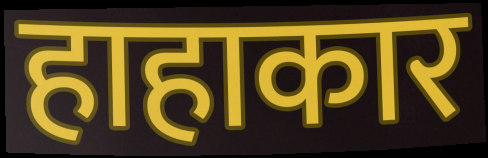
हाहाकार